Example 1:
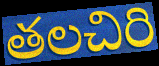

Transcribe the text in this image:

తలచిరి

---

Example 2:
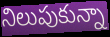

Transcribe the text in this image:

నిలుపుకున్నా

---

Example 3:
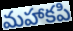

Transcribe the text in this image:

మహాకపి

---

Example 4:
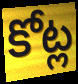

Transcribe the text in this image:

కోట్ల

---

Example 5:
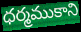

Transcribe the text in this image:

ధర్మముకాని